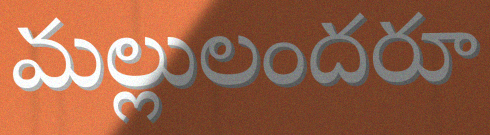
మల్లులందరూ